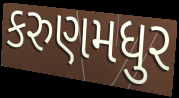
કરુણમધુર